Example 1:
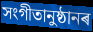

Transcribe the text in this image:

সংগীতানুষ্ঠানৰ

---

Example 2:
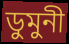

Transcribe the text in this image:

ডুমুনী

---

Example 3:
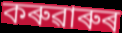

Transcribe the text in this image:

কৰুৱাৰুৰ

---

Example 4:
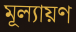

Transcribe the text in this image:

মূল্যায়ণ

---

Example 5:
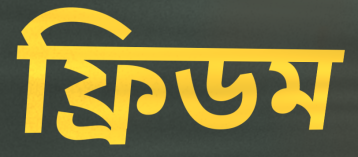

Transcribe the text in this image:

ফ্ৰিডম